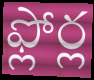
ఫ్లోర్ల